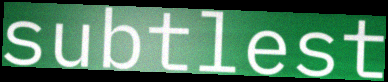
subtlest